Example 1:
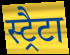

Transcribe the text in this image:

स्ट्रैटा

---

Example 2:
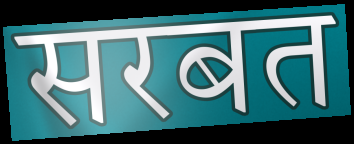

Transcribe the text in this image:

सरबत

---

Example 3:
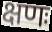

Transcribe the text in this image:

क्षणः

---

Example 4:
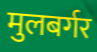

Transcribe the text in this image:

मुलबर्गर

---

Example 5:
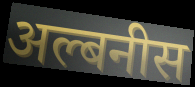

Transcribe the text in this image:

अल्बनीस